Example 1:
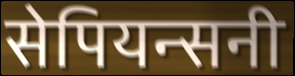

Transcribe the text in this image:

सेपियन्सनी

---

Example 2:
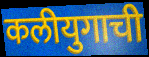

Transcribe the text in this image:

कलीयुगाची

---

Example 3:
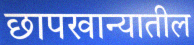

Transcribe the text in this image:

छापखान्यातील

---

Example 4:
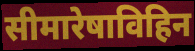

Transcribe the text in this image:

सीमारेषाविहिन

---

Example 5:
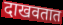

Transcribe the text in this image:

दाखवतात